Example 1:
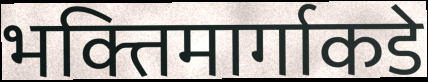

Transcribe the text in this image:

भक्तिमार्गाकडे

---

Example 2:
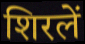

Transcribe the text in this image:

शिरलें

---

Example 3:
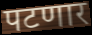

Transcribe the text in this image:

पटणार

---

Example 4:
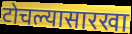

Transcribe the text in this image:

टोचल्यासारखा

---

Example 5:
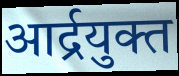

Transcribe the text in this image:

आर्द्रयुक्त